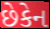
છેકેન